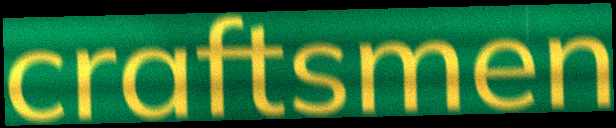
craftsmen